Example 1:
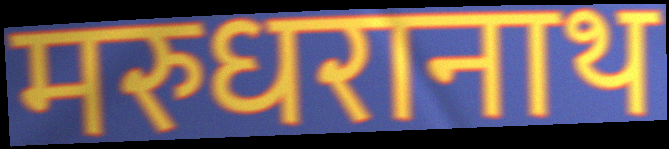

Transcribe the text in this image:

मरुधरानाथ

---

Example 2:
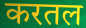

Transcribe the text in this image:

करतल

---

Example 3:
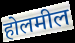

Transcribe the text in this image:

होलमील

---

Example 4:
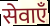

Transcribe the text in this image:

सेवाएँ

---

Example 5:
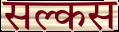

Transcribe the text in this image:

सल्कस